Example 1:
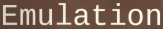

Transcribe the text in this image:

Emulation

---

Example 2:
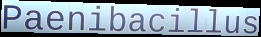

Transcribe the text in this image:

Paenibacillus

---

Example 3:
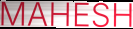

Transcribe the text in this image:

MAHESH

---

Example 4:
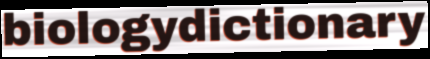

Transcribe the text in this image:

biologydictionary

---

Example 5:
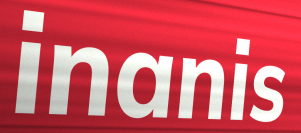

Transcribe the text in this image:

inanis